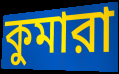
কুমারা